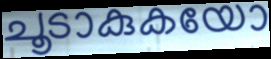
ചൂടാകുകയോ